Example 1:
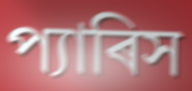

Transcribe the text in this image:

প্যাৰিস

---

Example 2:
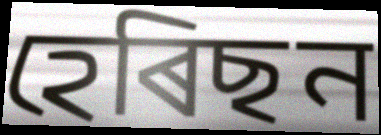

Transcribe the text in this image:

হেৰিছন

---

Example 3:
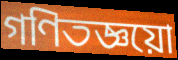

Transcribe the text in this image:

গণিতজ্ঞয়ো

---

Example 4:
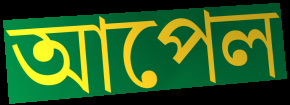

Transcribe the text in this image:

আপেল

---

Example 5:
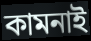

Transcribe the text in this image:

কামনাই